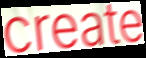
create